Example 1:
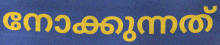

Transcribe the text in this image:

നോക്കുന്നത്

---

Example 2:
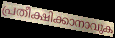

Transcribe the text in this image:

പ്രതീക്ഷിക്കാനാവുക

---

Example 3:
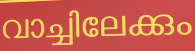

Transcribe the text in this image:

വാച്ചിലേക്കും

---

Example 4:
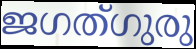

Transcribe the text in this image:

ജഗത്ഗുരു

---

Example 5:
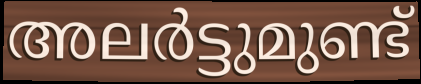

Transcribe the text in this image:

അലർട്ടുമുണ്ട്